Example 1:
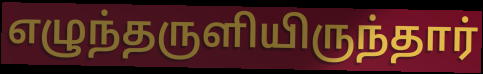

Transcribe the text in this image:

எழுந்தருளியிருந்தார்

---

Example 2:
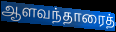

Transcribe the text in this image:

ஆளவந்தாரைத்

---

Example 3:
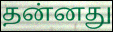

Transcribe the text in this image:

தன்னது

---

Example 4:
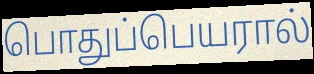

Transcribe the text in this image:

பொதுப்பெயரால்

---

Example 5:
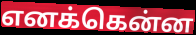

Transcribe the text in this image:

எனக்கென்ன